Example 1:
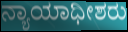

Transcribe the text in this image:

ನ್ಯಾಯಾಧೀಶರು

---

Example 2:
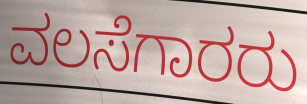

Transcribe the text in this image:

ವಲಸೆಗಾರರು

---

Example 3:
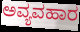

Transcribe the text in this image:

ಅವ್ಯವಹಾರ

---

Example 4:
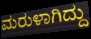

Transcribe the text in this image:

ಮರುಳಾಗಿದ್ದು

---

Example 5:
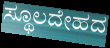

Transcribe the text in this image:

ಸ್ಥೂಲದೇಹದ